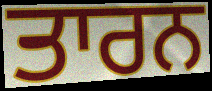
ਤਾਰਨ